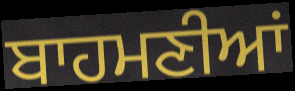
ਬਾਹਮਣੀਆਂ